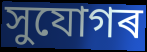
সুযোগৰ